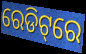
ରେଡିଟ୍‌ରେ